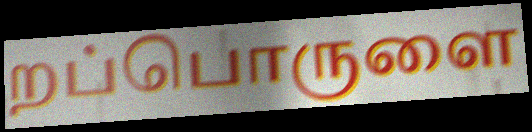
றப்பொருளை